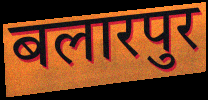
बलारपुर